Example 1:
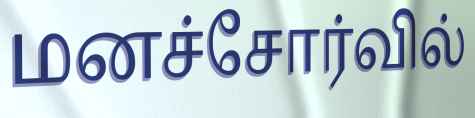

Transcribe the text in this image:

மனச்சோர்வில்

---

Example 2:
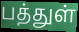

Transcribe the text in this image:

பத்துள்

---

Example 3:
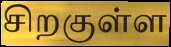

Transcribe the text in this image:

சிறகுள்ள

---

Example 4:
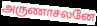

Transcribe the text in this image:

அருணாசலனே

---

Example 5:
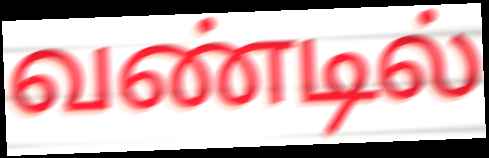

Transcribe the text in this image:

வண்டில்